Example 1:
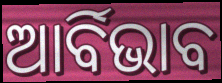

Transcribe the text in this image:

ଆର୍ବିଭାବ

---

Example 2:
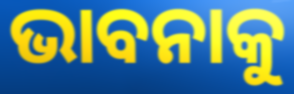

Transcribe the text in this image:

ଭାବନାକୁ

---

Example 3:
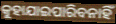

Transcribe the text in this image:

କୁହାଯାଇପାରିବନାହିଁ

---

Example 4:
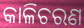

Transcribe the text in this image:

କାଳିଚରଣ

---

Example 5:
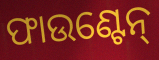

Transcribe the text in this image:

ଫାଉଣ୍ଟେନ୍